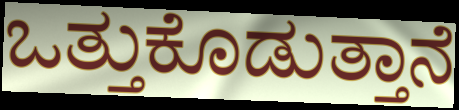
ಒತ್ತುಕೊಡುತ್ತಾನೆ